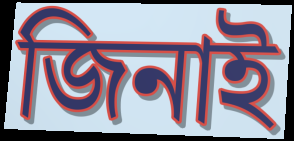
জিনাই